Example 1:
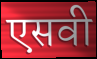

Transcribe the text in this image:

एसवी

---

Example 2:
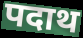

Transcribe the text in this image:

पदाथ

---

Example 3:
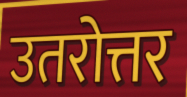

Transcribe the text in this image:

उतरोत्तर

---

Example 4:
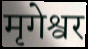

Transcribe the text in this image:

मृगेश्वर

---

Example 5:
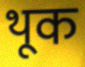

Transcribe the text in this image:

थूक